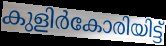
കുളിർകോരിയിട്ട്